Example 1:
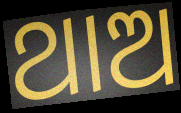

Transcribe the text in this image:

ଥାଅ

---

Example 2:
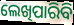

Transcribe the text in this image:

ଲେଖିପାରିବି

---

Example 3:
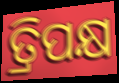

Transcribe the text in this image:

ତ୍ରିପକ୍ଷ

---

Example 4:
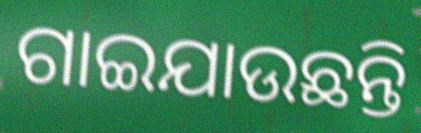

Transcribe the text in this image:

ଗାଇଯାଉଛନ୍ତି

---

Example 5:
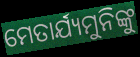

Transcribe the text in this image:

ମେତାର୍ଯ୍ୟମୁନିଙ୍କୁ